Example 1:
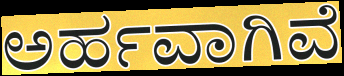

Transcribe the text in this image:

ಅರ್ಹವಾಗಿವೆ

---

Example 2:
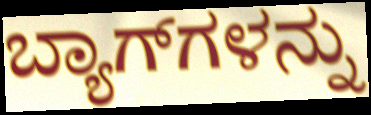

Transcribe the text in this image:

ಬ್ಯಾಗ್‍ಗಳನ್ನು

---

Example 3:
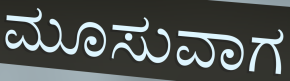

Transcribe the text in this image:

ಮೂಸುವಾಗ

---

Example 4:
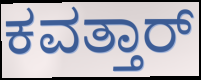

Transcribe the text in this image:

ಕವತ್ತಾರ್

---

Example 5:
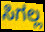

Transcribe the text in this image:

ಸಿಗಲ್ಲ